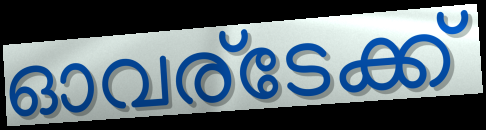
ഓവര്ടേക്ക്